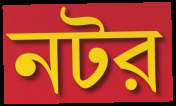
নটর